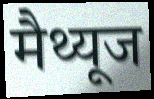
मैथ्‍यूज